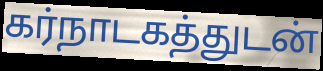
கர்நாடகத்துடன்